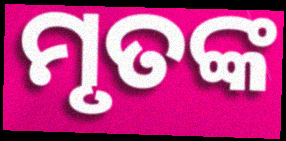
ମୃତଙ୍କ